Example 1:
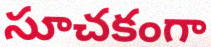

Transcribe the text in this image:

సూచకంగా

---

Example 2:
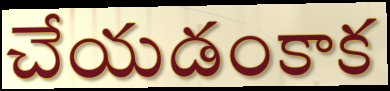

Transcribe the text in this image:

చేయడంకాక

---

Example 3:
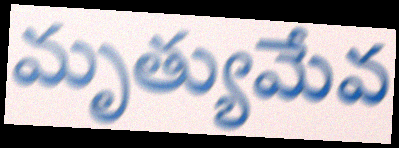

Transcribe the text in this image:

మృత్యుమేవ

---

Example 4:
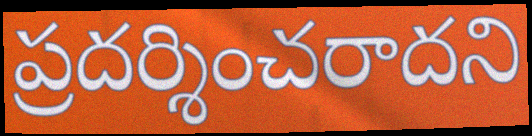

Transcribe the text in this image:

ప్రదర్శించరాదని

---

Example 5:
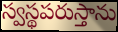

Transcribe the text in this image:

స్వస్థపరుస్తాను